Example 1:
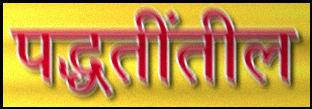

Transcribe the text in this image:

पद्धतींतील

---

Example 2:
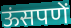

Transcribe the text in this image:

ऊंसपणें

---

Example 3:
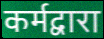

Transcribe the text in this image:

कर्मद्वारा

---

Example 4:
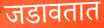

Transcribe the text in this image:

जडावतात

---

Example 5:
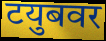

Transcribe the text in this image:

टयुबवर